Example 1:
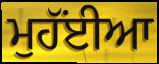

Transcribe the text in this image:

ਮੁਹੱਂਈਆ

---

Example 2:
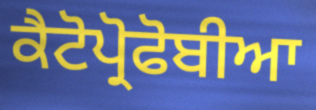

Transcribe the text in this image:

ਕੈਟੋਪ੍ਰੋਫੋਬੀਆ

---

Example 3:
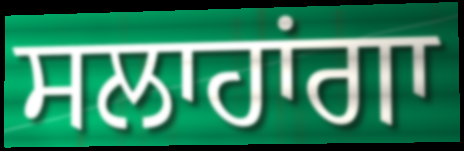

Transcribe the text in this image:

ਸਲਾਹਾਂਗਾ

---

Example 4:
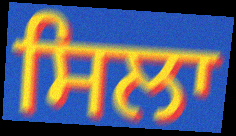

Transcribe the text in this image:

ਸਿਲਾ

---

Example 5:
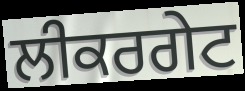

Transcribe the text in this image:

ਲੀਕਰਗੇਟ